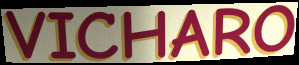
VICHARO